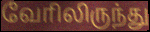
வேரிலிருந்து